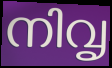
നിവൃ